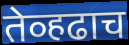
तेव्हढाच